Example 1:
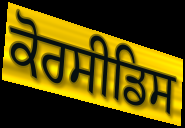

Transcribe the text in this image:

ਕੋਰਸੀਡਿਸ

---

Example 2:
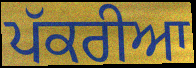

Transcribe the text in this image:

ਪੱਕਰੀਆ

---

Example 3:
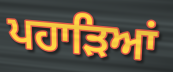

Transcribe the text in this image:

ਪਹਾੜਿਆਂ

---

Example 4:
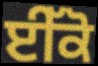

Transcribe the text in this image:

ਈੱਕੋ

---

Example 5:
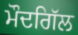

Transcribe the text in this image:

ਮੌਦਗਿੱਲ